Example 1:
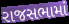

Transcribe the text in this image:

રાજસભામાં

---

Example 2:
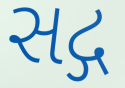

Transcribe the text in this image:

સદ્ગ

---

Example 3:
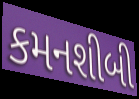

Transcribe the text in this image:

કમનશીબી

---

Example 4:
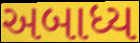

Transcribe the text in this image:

અબાધ્ય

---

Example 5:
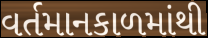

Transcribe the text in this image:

વર્તમાનકાળમાંથી